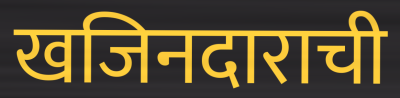
खजिनदाराची